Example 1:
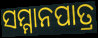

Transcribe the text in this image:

ସମ୍ମାନପାତ୍ର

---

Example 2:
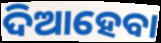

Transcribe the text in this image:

ଦିଆହେବା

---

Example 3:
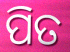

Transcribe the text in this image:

ପିତ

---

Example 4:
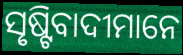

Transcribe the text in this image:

ସୃଷ୍ଟିବାଦୀମାନେ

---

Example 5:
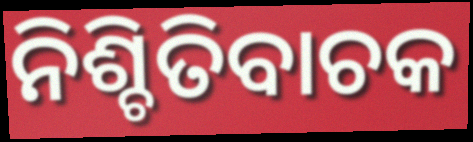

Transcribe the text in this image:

ନିଶ୍ଚିତିବାଚକ